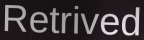
Retrived